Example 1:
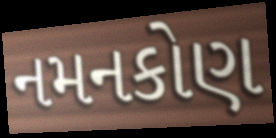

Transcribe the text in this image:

નમનકોણ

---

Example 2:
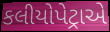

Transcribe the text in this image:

કલીયોપેટ્રાએ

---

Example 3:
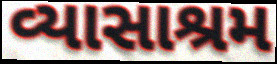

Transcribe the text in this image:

વ્યાસાશ્રમ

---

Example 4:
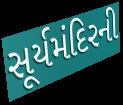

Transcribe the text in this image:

સૂર્યમંદિરની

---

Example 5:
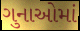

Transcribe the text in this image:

ગુનાઓમાં